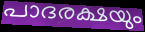
പാദരക്ഷയും